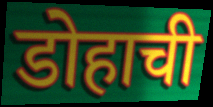
डोहाची